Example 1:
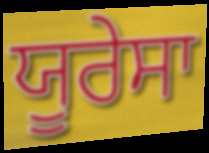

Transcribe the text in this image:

ਯੂਰੇਸਾ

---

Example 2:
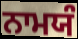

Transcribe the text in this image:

ਨਾਮਯੰ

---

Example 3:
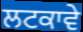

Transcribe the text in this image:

ਲਟਕਾਵੇ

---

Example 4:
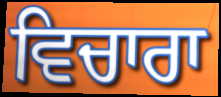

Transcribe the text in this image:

ਵਿਚਾਰਾ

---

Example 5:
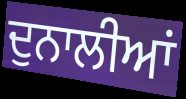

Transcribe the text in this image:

ਦੁਨਾਲੀਆਂ